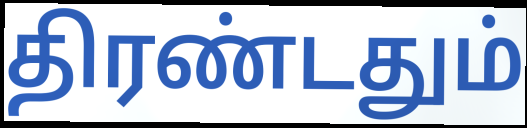
திரண்டதும்